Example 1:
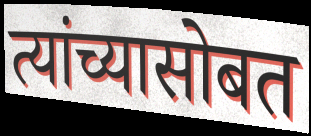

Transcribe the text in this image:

त्यांच्यासोबत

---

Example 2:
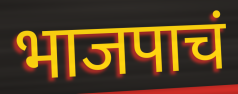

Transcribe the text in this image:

भाजपाचं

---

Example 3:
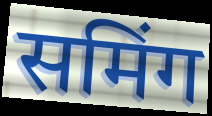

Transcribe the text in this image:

समिंग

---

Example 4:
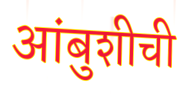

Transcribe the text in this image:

आंबुशीची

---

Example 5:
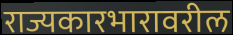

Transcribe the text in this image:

राज्यकारभारावरील